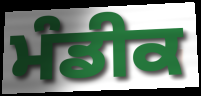
ਮੰਡੀਕ